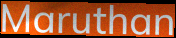
Maruthan